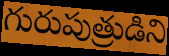
గురుపుత్రుడిని